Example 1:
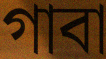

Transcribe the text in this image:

গাবা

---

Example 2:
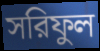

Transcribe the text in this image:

সরিফুল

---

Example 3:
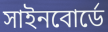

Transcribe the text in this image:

সাইনবোর্ডে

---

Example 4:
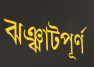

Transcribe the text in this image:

ঝঞ্ঝাটপূর্ণ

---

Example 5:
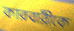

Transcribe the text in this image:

কারবারীকে